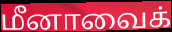
மீனாவைக்